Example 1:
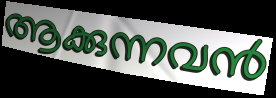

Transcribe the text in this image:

ആക്കുന്നവൻ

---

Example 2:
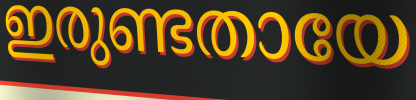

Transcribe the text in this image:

ഇരുണ്ടതായേ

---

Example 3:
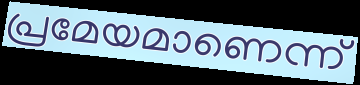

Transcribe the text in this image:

പ്രമേയമാണെന്ന്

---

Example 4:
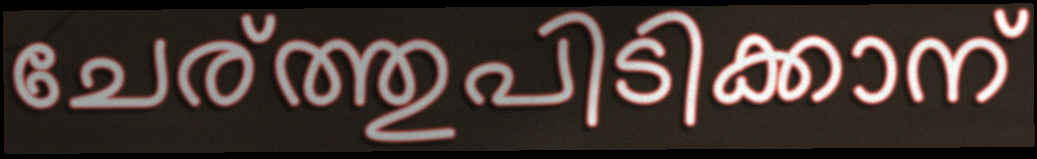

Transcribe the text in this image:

ചേര്ത്തുപിടിക്കാന്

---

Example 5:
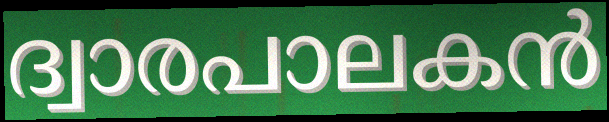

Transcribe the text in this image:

ദ്വാരപാലകൻ